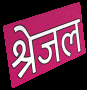
श्रेजल